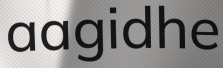
aagidhe